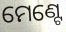
ମେଣ୍ଟେ